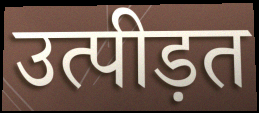
उत्पीड़त